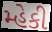
મ્હેકી